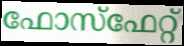
ഫോസ്ഫേറ്റ്